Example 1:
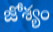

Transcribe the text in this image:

జోశ్యం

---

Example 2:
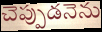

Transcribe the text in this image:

చెప్పుడనెను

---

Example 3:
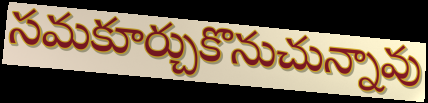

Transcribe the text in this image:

సమకూర్చుకొనుచున్నావు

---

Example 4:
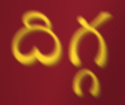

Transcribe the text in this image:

దిగ్గ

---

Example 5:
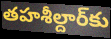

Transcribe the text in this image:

తహశీల్దార్‌కు